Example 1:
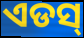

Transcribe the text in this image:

ଏଡସ୍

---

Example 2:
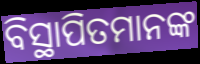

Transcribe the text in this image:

ବିସ୍ଥାପିତମାନଙ୍କ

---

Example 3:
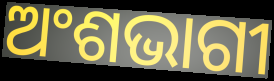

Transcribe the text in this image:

ଅଂଶଭାଗୀ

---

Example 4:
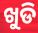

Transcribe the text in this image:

ଖୁଡି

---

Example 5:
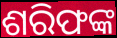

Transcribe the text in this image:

ଶରିଫଙ୍କ